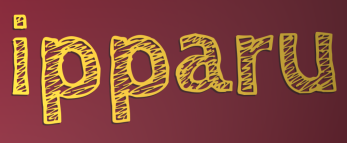
ipparu